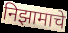
निझामाचे